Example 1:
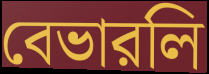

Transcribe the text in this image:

বেভারলি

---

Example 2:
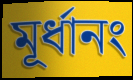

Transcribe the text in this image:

মূর্ধানং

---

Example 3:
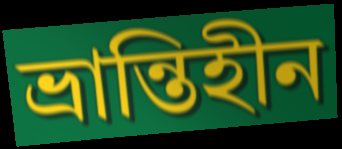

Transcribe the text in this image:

ভ্রান্তিহীন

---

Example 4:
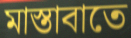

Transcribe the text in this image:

মাস্তাবাতে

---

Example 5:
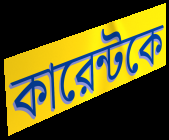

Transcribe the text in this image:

কারেন্টকে